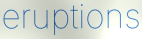
eruptions